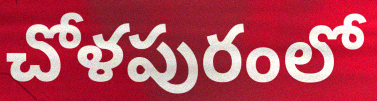
చోళపురంలో